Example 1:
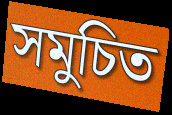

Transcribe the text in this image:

সমুচিত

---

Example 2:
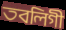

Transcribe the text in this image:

তবলিগী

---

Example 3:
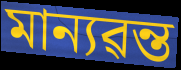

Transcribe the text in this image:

মান্যৱন্ত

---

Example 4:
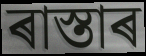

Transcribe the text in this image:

ৰাস্তাৰ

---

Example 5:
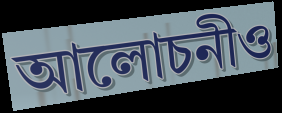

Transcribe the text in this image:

আলোচনীও